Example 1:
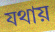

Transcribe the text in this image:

যথায়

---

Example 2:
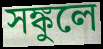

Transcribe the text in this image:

সঙ্কুলে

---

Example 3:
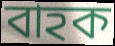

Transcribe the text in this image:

বাহক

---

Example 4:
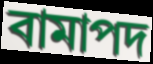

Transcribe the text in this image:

বামাপদ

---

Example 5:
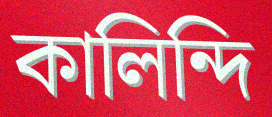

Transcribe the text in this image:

কালিন্দি